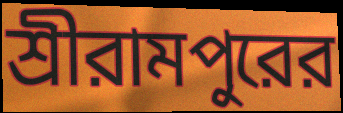
শ্রীরামপুরের